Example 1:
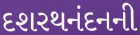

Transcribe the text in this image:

દશરથનંદનની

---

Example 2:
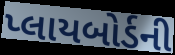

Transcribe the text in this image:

પ્લાયબોર્ડની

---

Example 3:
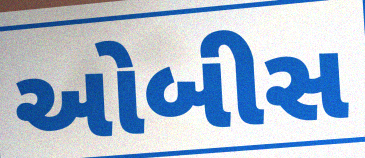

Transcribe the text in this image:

ઓબીસ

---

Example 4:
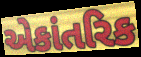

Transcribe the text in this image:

એકાંતરિક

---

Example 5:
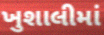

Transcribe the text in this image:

ખુશાલીમાં